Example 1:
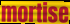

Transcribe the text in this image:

mortise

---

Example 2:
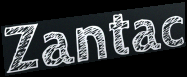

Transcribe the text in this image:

Zantac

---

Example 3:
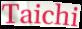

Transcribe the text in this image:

Taichi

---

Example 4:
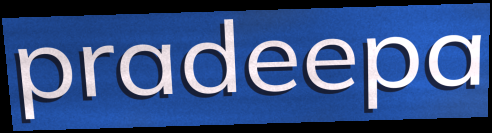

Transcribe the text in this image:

pradeepa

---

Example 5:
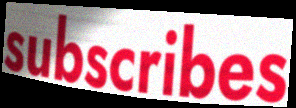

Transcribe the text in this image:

subscribes